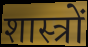
शास्त्रों